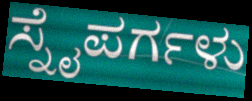
ಸ್ನೈಪರ್ಗಳು